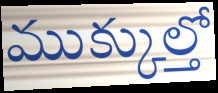
ముక్కుల్తో